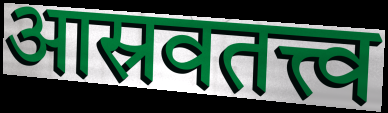
आस्रवतत्त्व